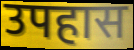
उपहास